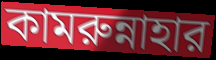
কামরুন্নাহার